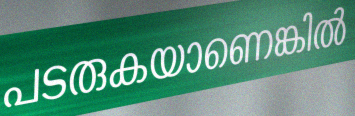
പടരുകയാണെങ്കിൽ